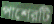
পাশেরটি